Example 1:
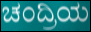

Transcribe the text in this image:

ಚಂದ್ರಿಯ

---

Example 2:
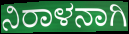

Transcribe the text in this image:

ನಿರಾಳನಾಗಿ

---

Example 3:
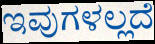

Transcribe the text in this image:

ಇವುಗಳಲ್ಲದೆ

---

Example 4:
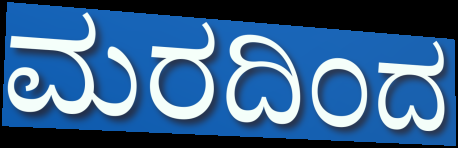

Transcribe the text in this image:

ಮರದಿಂದ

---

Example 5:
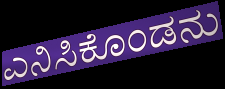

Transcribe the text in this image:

ಎನಿಸಿಕೊಂಡನು